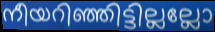
നീയറിഞ്ഞിട്ടില്ലല്ലോ